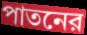
পাতনের